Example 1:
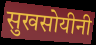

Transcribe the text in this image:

सुखसोयीनी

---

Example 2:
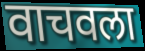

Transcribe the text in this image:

वाचवला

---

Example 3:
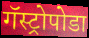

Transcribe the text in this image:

गॅस्ट्रोपोडा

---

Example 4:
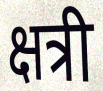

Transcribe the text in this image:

क्षत्री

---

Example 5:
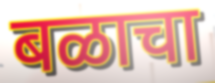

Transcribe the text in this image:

बळाचा